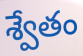
శ్వేతం